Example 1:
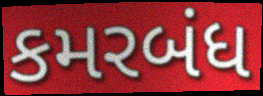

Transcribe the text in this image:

કમરબંધ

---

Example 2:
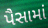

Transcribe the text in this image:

પૈસામાં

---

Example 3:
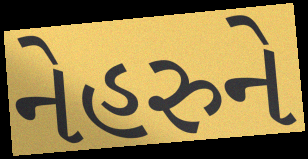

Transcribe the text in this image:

નેહરુને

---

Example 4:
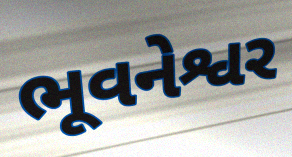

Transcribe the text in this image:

ભૂવનેશ્વર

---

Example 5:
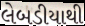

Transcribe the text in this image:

લેબડીયાથી